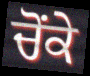
ਚੋਂਕੇ